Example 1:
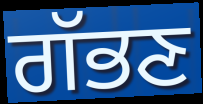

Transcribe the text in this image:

ਗੱਭਣ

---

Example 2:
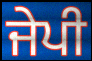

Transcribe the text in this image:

ਜੇਪੀ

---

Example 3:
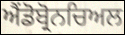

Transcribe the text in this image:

ਐਂਡੋਬ੍ਰੋਨਚਿਅਲ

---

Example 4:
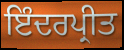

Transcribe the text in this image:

ਇੰਦਰਪ੍ਰੀਤ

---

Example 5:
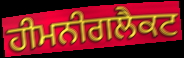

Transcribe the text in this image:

ਹੀਮਨੀਗਲੈਕਟ